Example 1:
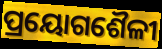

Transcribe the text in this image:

ପ୍ରୟୋଗଶୈଳୀ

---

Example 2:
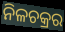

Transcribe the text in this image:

ନିଳଚକ୍ରର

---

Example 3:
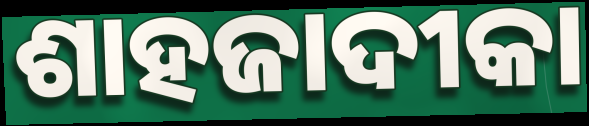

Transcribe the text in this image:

ଶାହଜାଦୀକା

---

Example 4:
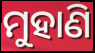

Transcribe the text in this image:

ମୁହାଣି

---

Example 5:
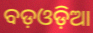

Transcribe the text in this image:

ବଡ଼ଓଡ଼ିଆ